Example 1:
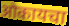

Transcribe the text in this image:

ओकायचा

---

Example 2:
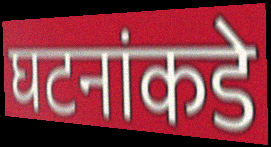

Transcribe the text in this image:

घटनांकडे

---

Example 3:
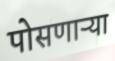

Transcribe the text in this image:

पोसणाऱ्या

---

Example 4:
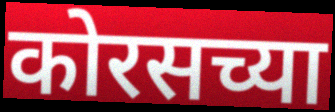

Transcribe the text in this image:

कोरसच्या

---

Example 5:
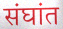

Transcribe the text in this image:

संघांत